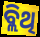
ବ୍ଲିଥି